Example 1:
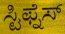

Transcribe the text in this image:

ಸ್ಟಿಫ್ನೆಸ್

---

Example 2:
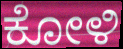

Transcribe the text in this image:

ಕೋಳಿ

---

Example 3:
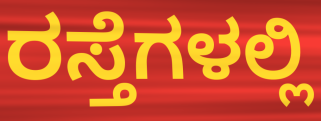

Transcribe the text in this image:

ರಸ್ತೆಗಳಲ್ಲಿ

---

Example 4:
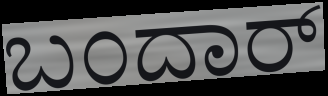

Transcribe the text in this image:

ಬಂದಾರ್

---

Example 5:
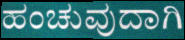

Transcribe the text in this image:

ಹಂಚುವುದಾಗಿ